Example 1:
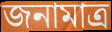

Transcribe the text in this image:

জনামাত্র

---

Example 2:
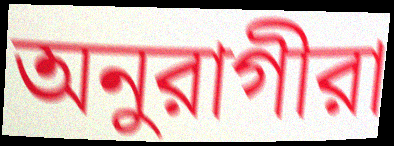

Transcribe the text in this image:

অনুরাগীরা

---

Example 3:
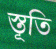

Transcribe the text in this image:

স্তূতি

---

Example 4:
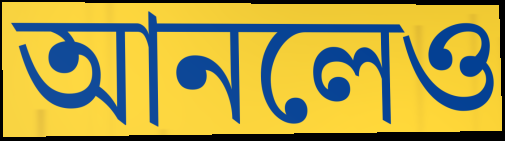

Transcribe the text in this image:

আনলেও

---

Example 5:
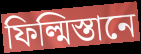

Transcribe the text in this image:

ফিল্মিস্তানে